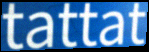
tattat